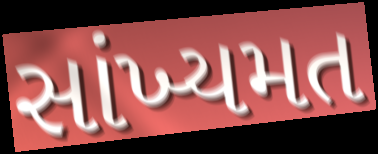
સાંખ્યમત